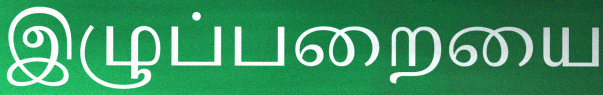
இழுப்பறையை